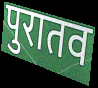
पुरातव